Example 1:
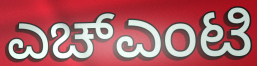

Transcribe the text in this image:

ಎಚ್ಎಂಟಿ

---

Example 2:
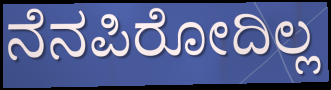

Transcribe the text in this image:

ನೆನಪಿರೋದಿಲ್ಲ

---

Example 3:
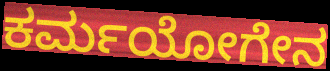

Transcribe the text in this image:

ಕರ್ಮಯೋಗೇನ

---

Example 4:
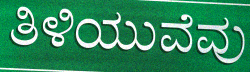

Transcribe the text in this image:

ತಿಳಿಯುವೆವು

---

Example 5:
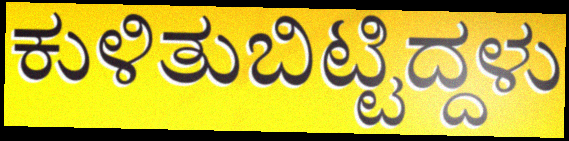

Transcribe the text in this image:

ಕುಳಿತುಬಿಟ್ಟಿದ್ದಳು